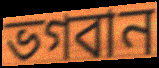
ভগবান